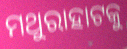
ମଥୁରାହାଟକୁ